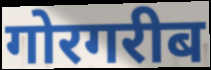
गोरगरीब